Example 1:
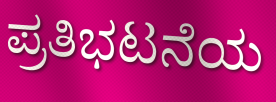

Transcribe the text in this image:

ಪ್ರತಿಭಟನೆಯ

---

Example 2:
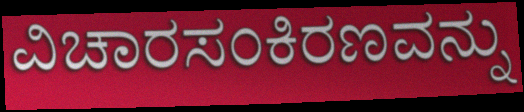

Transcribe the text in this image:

ವಿಚಾರಸಂಕಿರಣವನ್ನು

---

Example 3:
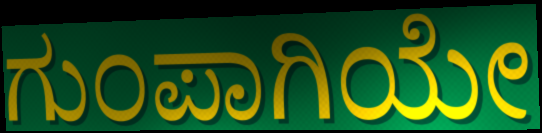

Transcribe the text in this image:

ಗುಂಪಾಗಿಯೇ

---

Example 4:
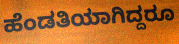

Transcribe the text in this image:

ಹೆಂಡತಿಯಾಗಿದ್ದರೂ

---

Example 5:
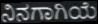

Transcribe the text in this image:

ನಿನಗಾಗಿಯೆ